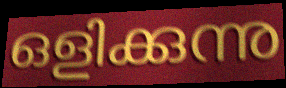
ഒളിക്കുന്നു